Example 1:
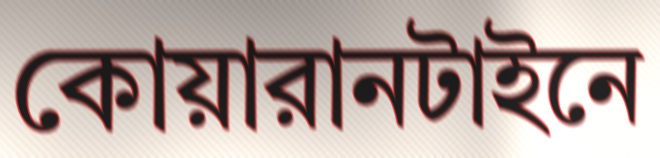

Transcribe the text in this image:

কোয়ারানটাইনে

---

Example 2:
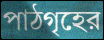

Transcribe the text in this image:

পাঠগৃহের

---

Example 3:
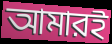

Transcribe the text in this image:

আমারই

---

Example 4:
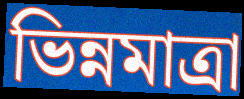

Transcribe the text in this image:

ভিন্নমাত্রা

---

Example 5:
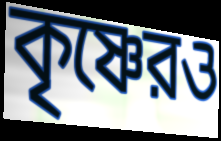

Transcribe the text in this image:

কৃষ্ণেরও